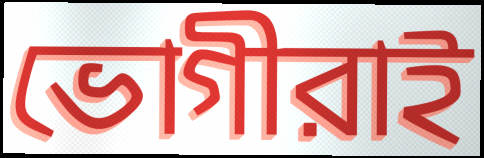
ভোগীরাই